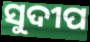
ସୁଦୀପ